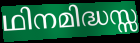
ഥിനമിദ്ധസ്സ